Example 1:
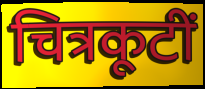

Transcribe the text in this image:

चित्रकूटीं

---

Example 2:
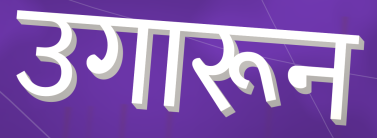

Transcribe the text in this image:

उगारून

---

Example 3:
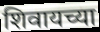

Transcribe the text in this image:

शिवायच्या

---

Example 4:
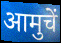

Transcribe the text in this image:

आमुचें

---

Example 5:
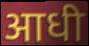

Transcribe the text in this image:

आधी